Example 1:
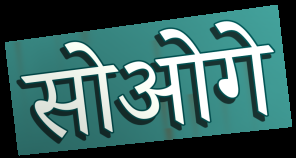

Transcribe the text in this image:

सोओगे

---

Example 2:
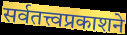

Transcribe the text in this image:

सर्वतत्त्वप्रकाशने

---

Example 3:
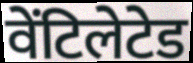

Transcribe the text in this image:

वेंटिलेटेड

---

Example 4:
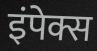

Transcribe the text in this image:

इंपेक्स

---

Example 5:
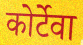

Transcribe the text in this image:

कोर्टेवा